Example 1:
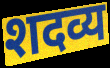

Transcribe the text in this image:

शदव्य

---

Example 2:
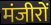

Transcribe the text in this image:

मंजीरों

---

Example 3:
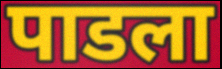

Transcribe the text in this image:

पाडला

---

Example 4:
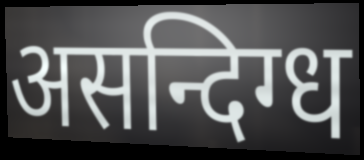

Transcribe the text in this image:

असन्दिग्ध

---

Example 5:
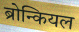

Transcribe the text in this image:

ब्रोन्कियल